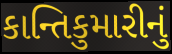
કાન્તિકુમારીનું